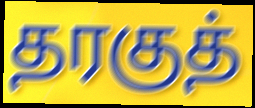
தரகுத்